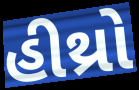
હીથ્રો